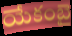
యేకంబై